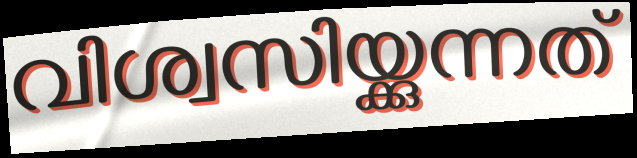
വിശ്വസിയ്ക്കുന്നത്